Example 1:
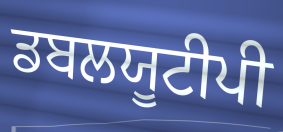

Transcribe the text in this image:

ਡਬਲਯੂਟੀਪੀ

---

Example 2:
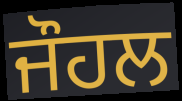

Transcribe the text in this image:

ਜੌਹਲ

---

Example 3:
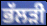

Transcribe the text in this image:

ਭੱਲੜੀ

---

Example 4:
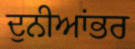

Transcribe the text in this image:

ਦੁਨੀਆਂਭਰ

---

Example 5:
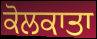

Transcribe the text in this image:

ਕੋਲਕਾਤਾ